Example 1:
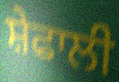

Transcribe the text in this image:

ਸ਼ੇਫਾਲੀ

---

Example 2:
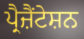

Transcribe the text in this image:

ਪ੍ਰੈਜ਼ੈਂਟੇਸ਼ਨ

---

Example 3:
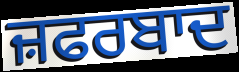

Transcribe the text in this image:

ਜ਼ਫਰਬਾਦ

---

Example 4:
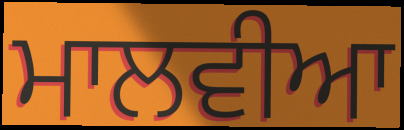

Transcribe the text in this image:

ਮਾਲਵੀਆ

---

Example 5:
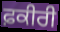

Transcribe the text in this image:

ਫ਼ਕੀਰੀ